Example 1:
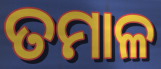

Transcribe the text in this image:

ତମାଳ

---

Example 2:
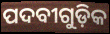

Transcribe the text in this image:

ପଦବୀଗୁଡ଼ିକ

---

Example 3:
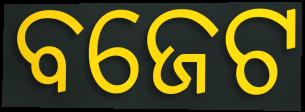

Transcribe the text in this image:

ବଜେଟ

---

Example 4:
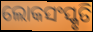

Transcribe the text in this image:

ଲୋକସଂସ୍କୃତି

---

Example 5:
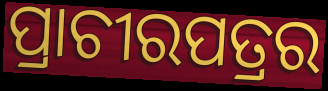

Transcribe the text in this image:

ପ୍ରାଚୀରପତ୍ରର